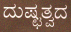
ದುಷ್ಟತ್ವದ